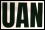
UAN